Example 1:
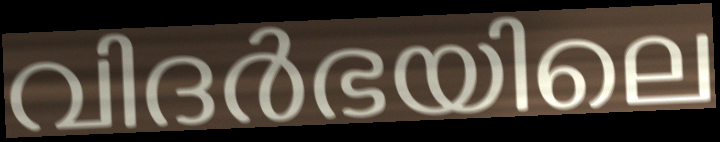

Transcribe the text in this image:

വിദർഭയിലെ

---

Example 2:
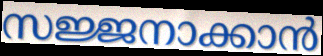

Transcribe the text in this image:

സജ്ജനാക്കാൻ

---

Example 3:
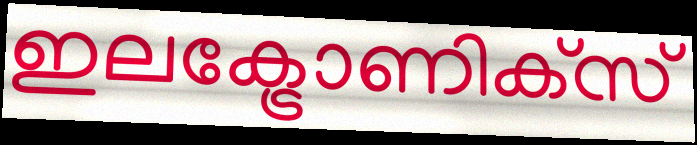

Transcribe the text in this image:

ഇലക്ട്രോണിക്‌സ്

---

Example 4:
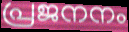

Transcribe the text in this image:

പ്രജനനം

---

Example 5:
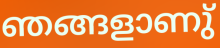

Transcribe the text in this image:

ഞങ്ങളാണു്